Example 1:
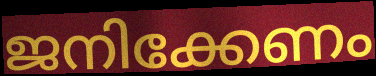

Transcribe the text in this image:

ജനിക്കേണം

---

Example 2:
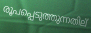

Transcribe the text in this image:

രൂപപ്പെടുത്തുന്നതില്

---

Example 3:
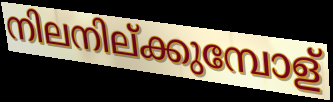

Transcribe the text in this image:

നിലനില്ക്കുമ്പോള്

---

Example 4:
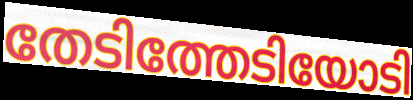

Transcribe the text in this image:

തേടിത്തേടിയോടി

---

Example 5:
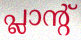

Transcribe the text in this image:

പ്ലാന്റ്